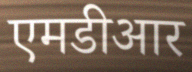
एमडीआर